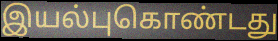
இயல்புகொண்டது